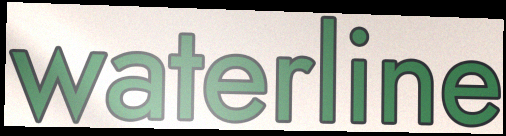
waterline